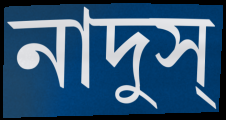
নাদুস্